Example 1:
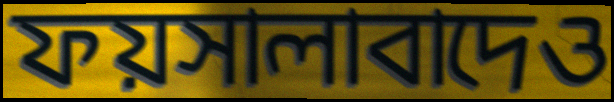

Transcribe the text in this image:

ফয়সালাবাদেও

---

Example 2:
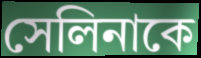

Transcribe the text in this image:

সেলিনাকে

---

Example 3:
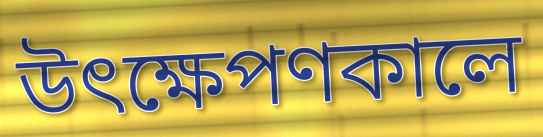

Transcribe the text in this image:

উৎক্ষেপণকালে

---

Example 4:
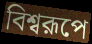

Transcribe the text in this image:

বিশ্বরূপে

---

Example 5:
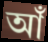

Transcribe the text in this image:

আঁ